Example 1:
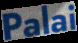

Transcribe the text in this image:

Palai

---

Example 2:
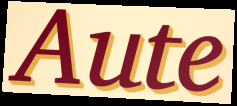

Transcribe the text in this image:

Aute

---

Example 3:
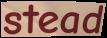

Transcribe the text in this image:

stead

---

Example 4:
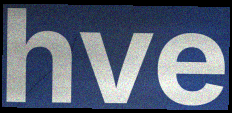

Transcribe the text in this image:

hve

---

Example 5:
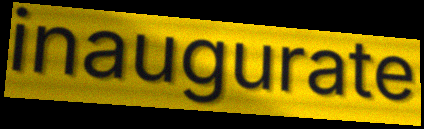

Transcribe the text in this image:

inaugurate